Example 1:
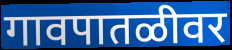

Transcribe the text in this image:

गावपातळीवर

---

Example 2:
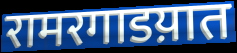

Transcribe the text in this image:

रामरगाडय़ात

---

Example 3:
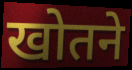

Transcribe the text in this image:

खोतने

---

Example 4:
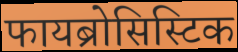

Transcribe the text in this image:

फायब्रोसिस्टिक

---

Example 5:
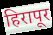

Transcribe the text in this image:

हिरापूर